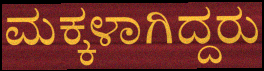
ಮಕ್ಕಳಾಗಿದ್ದರು